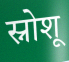
स्नोशू